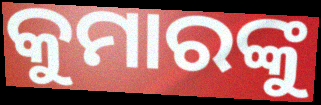
କୁମାରଙ୍କୁ